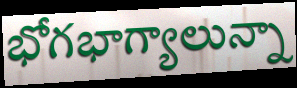
భోగభాగ్యాలున్నా